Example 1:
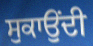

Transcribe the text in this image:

ਸੁਕਾਉਂਦੀ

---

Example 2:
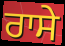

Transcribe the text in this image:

ਰਾਸੇ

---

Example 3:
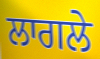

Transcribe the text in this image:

ਲਾਗਲੇ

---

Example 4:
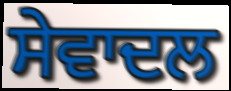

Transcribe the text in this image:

ਸੇਵਾਦਲ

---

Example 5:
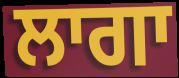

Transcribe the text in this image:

ਲਾਗਾ